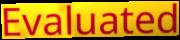
Evaluated